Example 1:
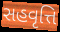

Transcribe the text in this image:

સહવૃત્તિ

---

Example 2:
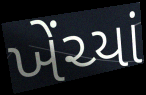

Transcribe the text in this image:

ખેંચ્યાં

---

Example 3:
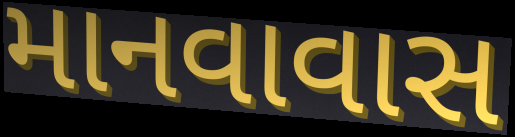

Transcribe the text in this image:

માનવાવાસ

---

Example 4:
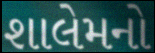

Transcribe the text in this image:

શાલેમનો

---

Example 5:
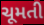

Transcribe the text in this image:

ચૂમતી